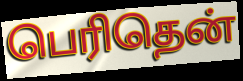
பெரிதென்